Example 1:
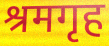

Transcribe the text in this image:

श्रमगृह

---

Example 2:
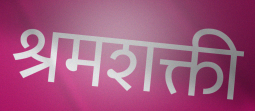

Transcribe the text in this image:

श्रमशक्ती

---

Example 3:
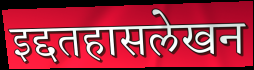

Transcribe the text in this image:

इद्दतहासलेखन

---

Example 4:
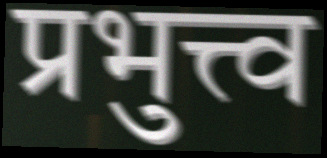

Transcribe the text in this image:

प्रभुत्त्व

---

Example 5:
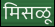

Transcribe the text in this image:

मिसळू